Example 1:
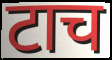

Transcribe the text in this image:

टाच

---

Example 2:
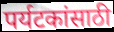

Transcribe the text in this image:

पर्यटकांसाठी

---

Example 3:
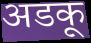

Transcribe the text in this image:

अडकू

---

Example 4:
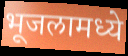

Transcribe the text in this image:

भूजलामध्ये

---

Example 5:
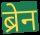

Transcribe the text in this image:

ब्रेन